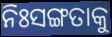
ନିଃସଙ୍ଗତାକୁ